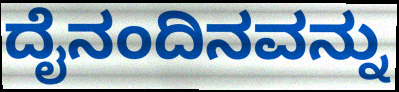
ದೈನಂದಿನವನ್ನು